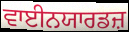
ਵਾਈਨਯਾਰਡਜ਼